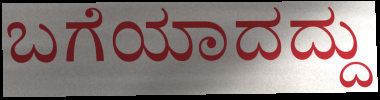
ಬಗೆಯಾದದ್ದು